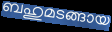
ബഹുമടങ്ങായ